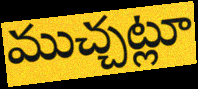
ముచ్చట్లూ